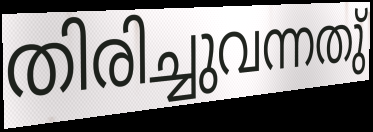
തിരിച്ചുവന്നതു്